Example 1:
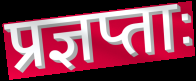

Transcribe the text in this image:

प्रज्ञप्ताः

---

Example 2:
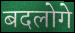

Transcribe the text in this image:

बदलोगे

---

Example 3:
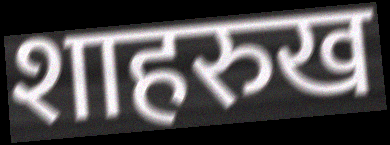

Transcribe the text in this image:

शाहरुख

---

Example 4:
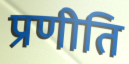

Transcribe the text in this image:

प्रणीति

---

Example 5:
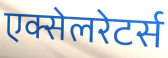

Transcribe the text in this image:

एक्सेलरेटर्स